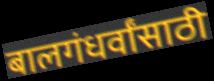
बालगंधर्वांसाठी